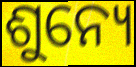
ଶୁନ୍ୟେ